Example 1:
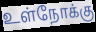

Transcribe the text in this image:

உள்நோக்கு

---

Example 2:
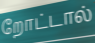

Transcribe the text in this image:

றோட்டால்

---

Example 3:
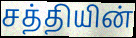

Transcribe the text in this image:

சத்தியின்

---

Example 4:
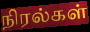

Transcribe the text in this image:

நிரல்கள்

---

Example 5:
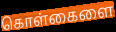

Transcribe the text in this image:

கொள்கைளை